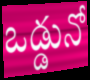
ఒడ్డునో